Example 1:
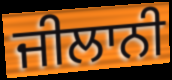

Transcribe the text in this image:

ਜੀਲਾਨੀ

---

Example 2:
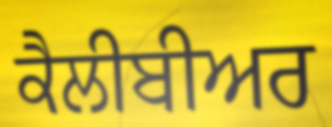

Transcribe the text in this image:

ਕੈਲੀਬੀਅਰ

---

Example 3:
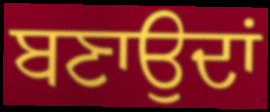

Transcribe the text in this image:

ਬਣਾਉਦਾਂ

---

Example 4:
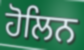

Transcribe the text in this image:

ਹੋਲਿਨ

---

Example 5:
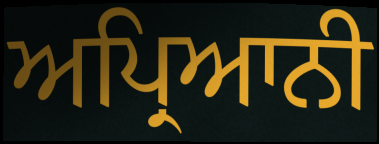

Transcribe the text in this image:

ਅਪ੍ਰਿਆਨੀ